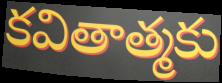
కవితాత్మకు